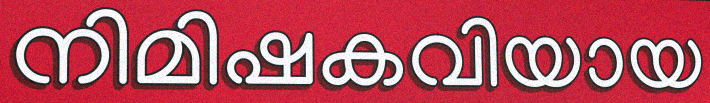
നിമിഷകവിയായ